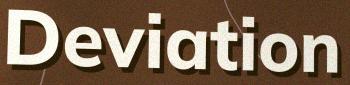
Deviation